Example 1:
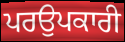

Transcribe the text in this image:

ਪਰਉਪਕਾਰੀ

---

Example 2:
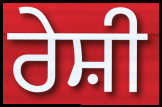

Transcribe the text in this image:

ਰੇਸ਼ੀ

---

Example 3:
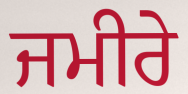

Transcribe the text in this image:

ਜਮੀਰੇ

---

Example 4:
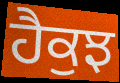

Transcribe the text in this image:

ਹੈਕੁਝ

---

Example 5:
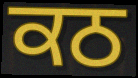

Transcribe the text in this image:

ਕਠ